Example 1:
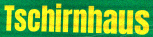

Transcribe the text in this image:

Tschirnhaus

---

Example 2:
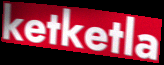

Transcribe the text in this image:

ketketla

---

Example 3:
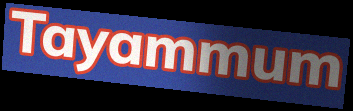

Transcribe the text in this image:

Tayammum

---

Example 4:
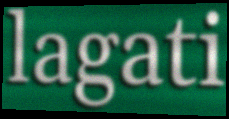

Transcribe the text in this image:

lagati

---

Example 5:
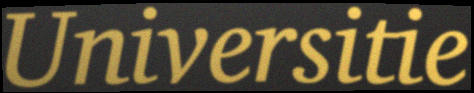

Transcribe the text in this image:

Universitie